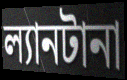
ল্যানটানা